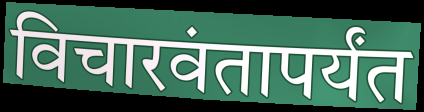
विचारवंतापर्यंत